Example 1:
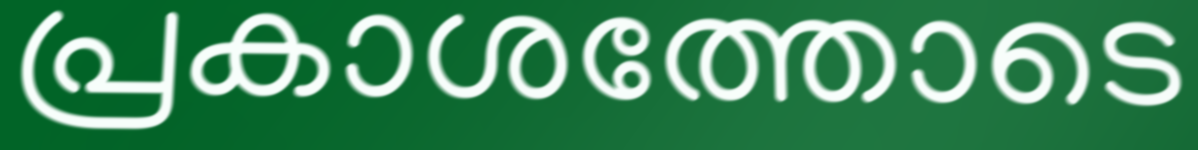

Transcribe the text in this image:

പ്രകാശത്തോടെ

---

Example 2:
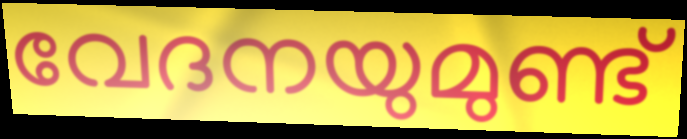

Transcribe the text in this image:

വേദനയുമുണ്ട്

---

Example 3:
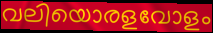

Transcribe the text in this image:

വലിയൊരളവോളം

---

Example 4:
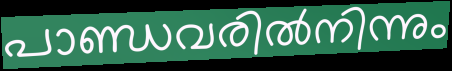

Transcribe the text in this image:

പാണ്ഡവരിൽനിന്നും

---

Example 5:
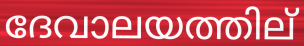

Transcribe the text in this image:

ദേവാലയത്തില്